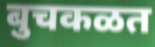
बुचकळत